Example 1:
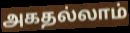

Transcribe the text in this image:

அகதல்லாம்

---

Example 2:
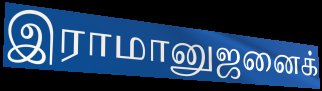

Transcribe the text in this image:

இராமானுஜனைக்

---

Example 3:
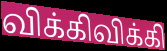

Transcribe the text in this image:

விக்கிவிக்கி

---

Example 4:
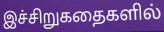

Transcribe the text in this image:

இச்சிறுகதைகளில்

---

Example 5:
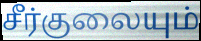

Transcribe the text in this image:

சீர்குலையும்